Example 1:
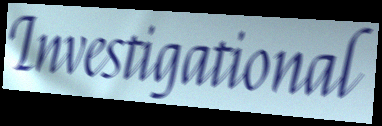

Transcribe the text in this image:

Investigational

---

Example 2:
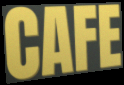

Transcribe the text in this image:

CAFE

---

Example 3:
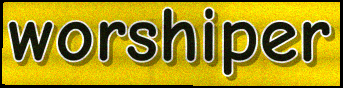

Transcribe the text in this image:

worshiper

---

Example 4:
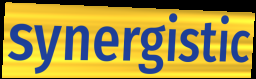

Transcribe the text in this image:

synergistic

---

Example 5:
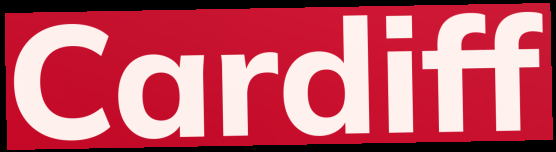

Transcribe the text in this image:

Cardiff